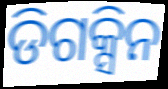
ଡିଗକ୍ସିନ